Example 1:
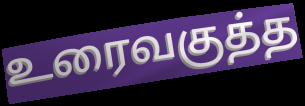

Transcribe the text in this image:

உரைவகுத்த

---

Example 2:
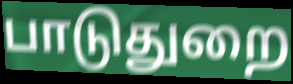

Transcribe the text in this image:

பாடுதுறை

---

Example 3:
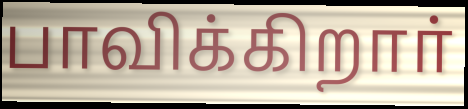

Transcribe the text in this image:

பாவிக்கிறார்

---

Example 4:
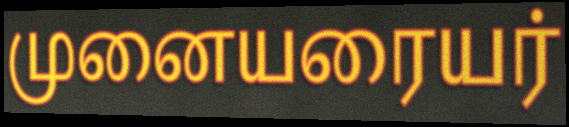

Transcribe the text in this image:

முனையரையர்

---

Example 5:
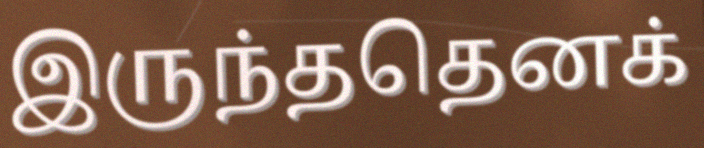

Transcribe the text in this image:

இருந்ததெனக்